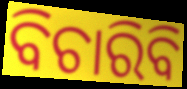
ବିଚାରିବି